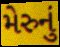
મેરુનું